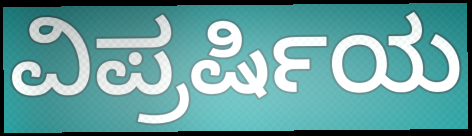
ವಿಪ್ರರ್ಷಿಯ